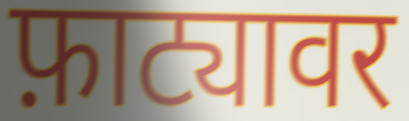
फ़ाट्यावर